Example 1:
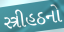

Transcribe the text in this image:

સ્ત્રીહઠનો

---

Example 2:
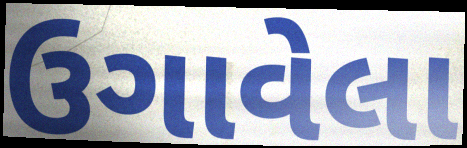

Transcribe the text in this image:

ઉગાવેલા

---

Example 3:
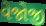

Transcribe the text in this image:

વેજોજી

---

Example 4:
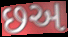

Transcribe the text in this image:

છઅ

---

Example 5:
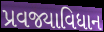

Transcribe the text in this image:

પ્રવજ્યાવિધાન